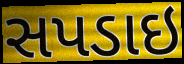
સપડાઇ